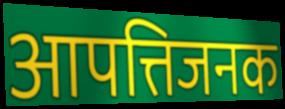
आपत्तिजनक